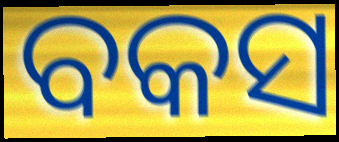
ବକସ